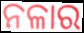
ନଳାର